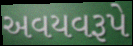
અવયવરૂપે